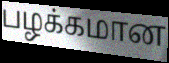
பழக்கமான